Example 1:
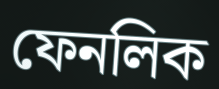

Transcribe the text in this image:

ফেনলিক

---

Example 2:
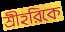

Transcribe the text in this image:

শ্রীহরিকে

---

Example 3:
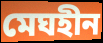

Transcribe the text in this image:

মেঘহীন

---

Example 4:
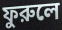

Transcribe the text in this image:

ফুরুলে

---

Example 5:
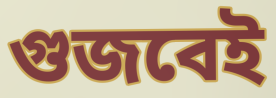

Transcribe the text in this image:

গুজবেই